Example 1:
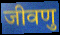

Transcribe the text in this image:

जीवणु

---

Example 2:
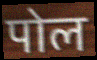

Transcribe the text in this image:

पोल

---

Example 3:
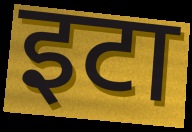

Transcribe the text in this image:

इटा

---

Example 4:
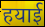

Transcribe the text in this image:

हयाई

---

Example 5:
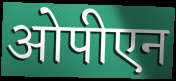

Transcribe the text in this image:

ओपीएन